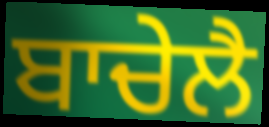
ਬਾਚੇਲੈ